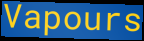
Vapours